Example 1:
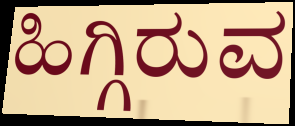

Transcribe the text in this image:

ಹಿಗ್ಗಿರುವ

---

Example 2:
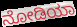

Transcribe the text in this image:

ನೋಡಿಯಾ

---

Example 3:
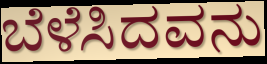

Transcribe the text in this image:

ಬೆಳೆಸಿದವನು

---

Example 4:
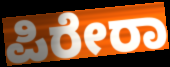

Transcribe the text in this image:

ಪಿರೇರಾ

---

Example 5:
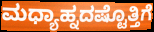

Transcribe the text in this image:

ಮಧ್ಯಾಹ್ನದಷ್ಟೊತ್ತಿಗೆ